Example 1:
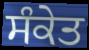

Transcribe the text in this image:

ਸੰਕੇਤ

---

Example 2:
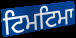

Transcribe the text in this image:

ਟਿਮਟਿਮਾ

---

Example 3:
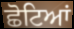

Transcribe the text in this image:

ਛੋਟਿਆਂ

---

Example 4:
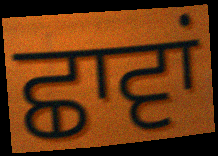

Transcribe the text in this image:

ਛਾਵਾਂ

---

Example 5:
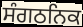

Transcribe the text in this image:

ਸੰਗਠਨਿਕ